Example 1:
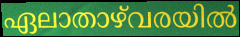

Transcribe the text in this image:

ഏലാതാഴ്‌വരയിൽ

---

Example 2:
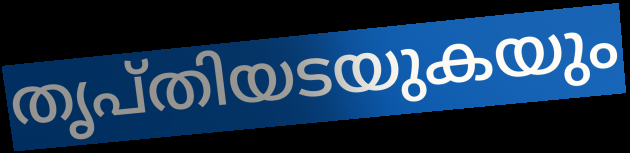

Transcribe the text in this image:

തൃപ്തിയടയുകയും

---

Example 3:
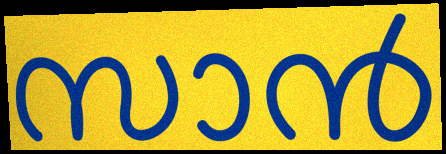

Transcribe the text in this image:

സാൻ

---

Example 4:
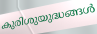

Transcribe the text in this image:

കുരിശുയുദ്ധങ്ങൾ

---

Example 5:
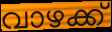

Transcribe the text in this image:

വാഴക്ക്